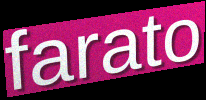
farato